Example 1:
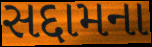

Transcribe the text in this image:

સદ્દામના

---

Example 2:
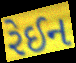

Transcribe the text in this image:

રેઈન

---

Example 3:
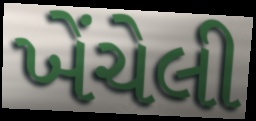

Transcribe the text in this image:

ખેંચેલી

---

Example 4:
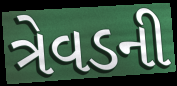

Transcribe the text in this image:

ત્રેવડની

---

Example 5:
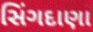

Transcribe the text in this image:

સિંગદાણા